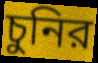
চুনির